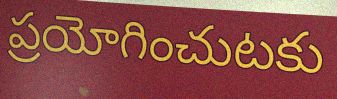
ప్రయోగించుటకు